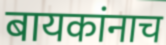
बायकांनाच